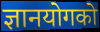
ज्ञानयोगको